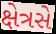
ક્ષેત્રસે